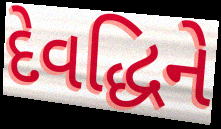
દેવદ્ધિને